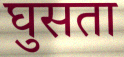
घुसता